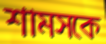
শামসকে